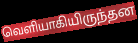
வெளியாகியிருந்தன